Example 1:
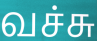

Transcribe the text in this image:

வச்சு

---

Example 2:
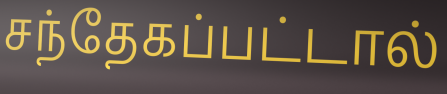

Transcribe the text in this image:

சந்தேகப்பட்டால்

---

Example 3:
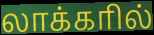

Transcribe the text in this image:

லாக்கரில்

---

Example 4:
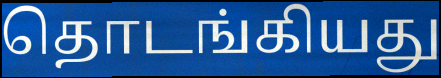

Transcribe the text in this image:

தொடங்கியது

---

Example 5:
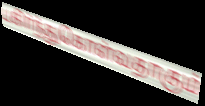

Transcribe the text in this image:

பகிர்ந்துகொள்வதாகும்